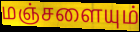
மஞ்சளையும்